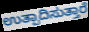
ಉತ್ಪಾದಿಸುತ್ತಾರೆ